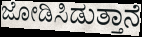
ಜೋಡಿಸಿಡುತ್ತಾನೆ